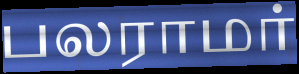
பலராமர்